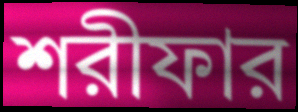
শরীফার